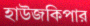
হাউজকিপার